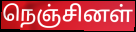
நெஞ்சினள்